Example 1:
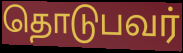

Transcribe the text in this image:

தொடுபவர்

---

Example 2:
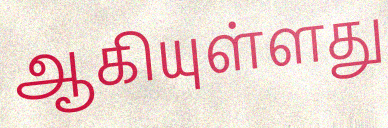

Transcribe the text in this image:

ஆகியுள்ளது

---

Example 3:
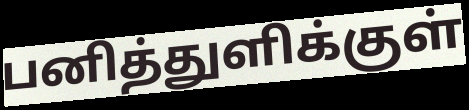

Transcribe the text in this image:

பனித்துளிக்குள்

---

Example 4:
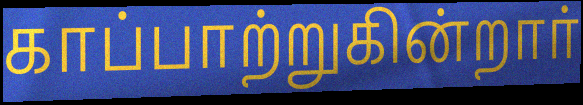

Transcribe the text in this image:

காப்பாற்றுகின்றார்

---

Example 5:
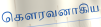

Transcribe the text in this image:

கௌரவனாகிய